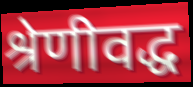
श्रेणीवद्ध